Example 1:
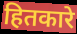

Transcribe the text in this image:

हितकारे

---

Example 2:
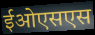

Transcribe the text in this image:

ईओएसएस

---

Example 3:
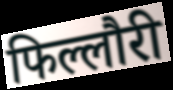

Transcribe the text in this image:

फिल्लौरी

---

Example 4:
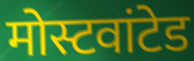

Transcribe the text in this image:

मोस्टवांटेड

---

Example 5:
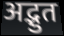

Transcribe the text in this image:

अद्भुत